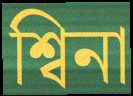
শ্বিনা